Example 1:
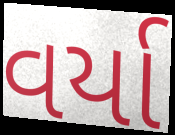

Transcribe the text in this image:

વર્યા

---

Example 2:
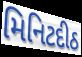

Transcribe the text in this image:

મિનિટદીઠ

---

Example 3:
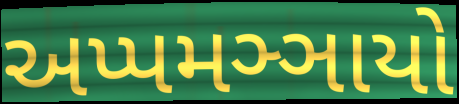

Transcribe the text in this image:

અપ્પમઞ્ઞાયો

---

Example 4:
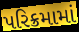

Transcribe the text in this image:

પરિક્રમામાં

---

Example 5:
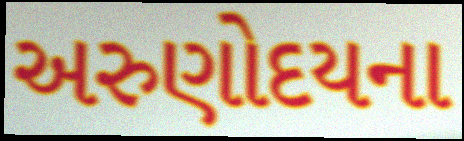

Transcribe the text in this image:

અરુણોદયના